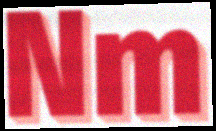
Nm